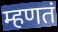
म्हणतं